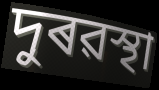
দুৰৱস্থা